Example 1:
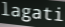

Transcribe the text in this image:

lagati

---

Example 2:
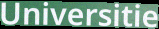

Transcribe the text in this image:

Universitie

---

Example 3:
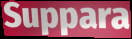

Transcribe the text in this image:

Suppara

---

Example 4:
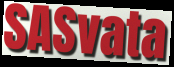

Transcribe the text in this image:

SASvata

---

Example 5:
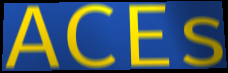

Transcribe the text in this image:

ACEs